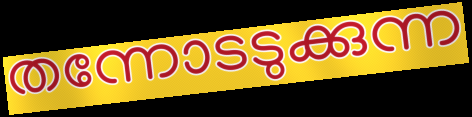
തന്നോടടുക്കുന്ന